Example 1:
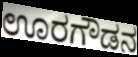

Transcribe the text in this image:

ಊರಗೌಡನ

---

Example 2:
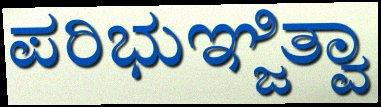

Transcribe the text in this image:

ಪರಿಭುಞ್ಜಿತ್ವಾ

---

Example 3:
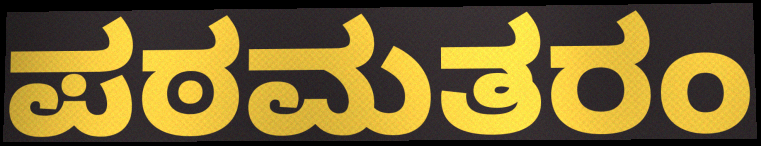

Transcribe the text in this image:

ಪಠಮತರಂ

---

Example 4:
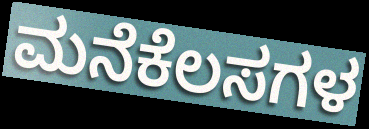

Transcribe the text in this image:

ಮನೆಕೆಲಸಗಳ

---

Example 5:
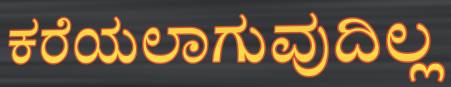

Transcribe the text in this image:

ಕರೆಯಲಾಗುವುದಿಲ್ಲ